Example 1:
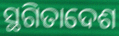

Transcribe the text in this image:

ସ୍ଥଗିତାଦେଶ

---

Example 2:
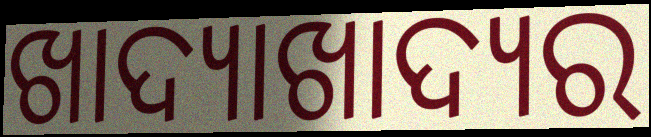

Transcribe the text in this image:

ଖାଦ୍ୟାଖାଦ୍ୟର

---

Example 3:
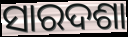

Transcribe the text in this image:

ସାରଦଶା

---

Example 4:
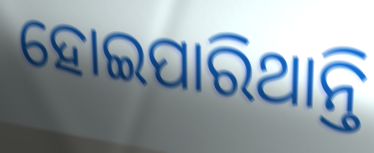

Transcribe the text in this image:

ହୋଇପାରିଥାନ୍ତି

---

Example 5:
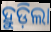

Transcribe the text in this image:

ହୁଡ଼ିଲା